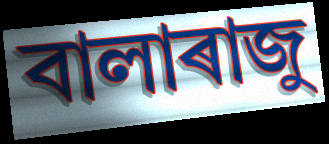
বালাৰাজু